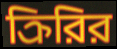
ক্রিরির